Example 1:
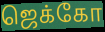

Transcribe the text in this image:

ஜெக்கோ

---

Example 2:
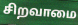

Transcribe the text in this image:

சிறவாமை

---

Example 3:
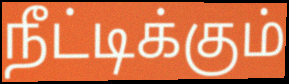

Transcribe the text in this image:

நீட்டிக்கும்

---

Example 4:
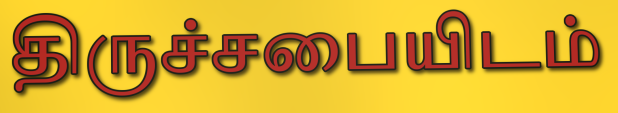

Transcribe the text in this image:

திருச்சபையிடம்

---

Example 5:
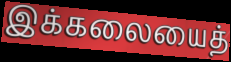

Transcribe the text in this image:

இக்கலையைத்